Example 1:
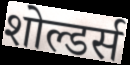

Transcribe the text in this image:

शोल्डर्स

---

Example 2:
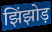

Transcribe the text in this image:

झिंझोड़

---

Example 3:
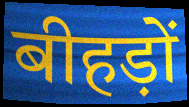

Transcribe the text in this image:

बीहड़ों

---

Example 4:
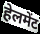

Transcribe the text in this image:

हेलमेंट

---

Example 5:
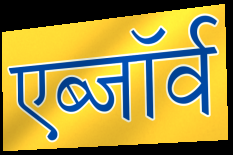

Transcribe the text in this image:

एब्जॉर्व